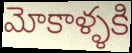
మోకాళ్ళకి